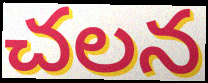
చలన